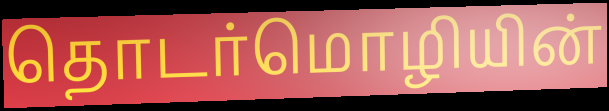
தொடர்மொழியின்